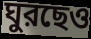
ঘুরছেও